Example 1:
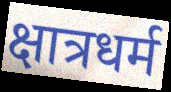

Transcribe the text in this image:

क्षात्रधर्म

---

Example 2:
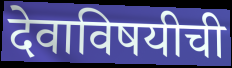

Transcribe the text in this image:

देवाविषयीची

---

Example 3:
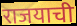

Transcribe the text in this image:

राजयाची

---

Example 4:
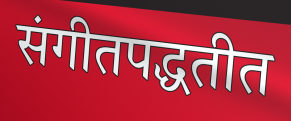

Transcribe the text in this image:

संगीतपद्धतीत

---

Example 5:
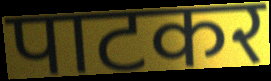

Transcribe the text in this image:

पाटकर